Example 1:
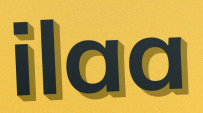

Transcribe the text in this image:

ilaa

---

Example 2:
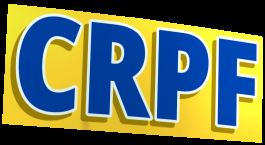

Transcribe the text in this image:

CRPF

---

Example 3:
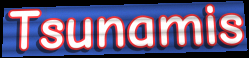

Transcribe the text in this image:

Tsunamis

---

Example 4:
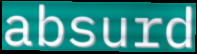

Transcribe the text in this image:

absurd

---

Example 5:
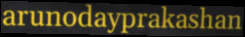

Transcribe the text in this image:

arunodayprakashan